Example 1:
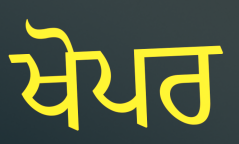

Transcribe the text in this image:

ਖੋਪਰ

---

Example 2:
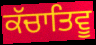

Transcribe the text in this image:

ਕੱਚਾਤਿਵੂ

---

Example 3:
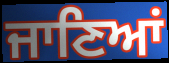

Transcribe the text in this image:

ਜਾਣਿਆਂ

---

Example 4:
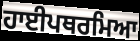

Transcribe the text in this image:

ਹਾਈਪਥਰਮਿਆ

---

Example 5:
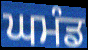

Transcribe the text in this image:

ਘਮੰਡ